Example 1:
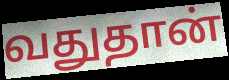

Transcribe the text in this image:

வதுதான்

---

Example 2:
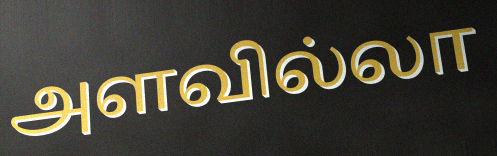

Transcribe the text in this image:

அளவில்லா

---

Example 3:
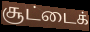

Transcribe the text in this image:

சூட்டைக்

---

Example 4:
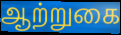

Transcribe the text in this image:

ஆற்றுகை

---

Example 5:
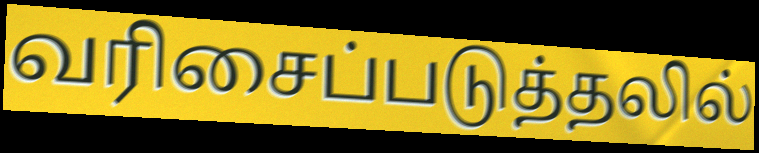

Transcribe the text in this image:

வரிசைப்படுத்தலில்